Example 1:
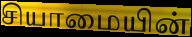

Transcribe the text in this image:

சியாமையின்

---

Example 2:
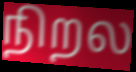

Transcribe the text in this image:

நிறல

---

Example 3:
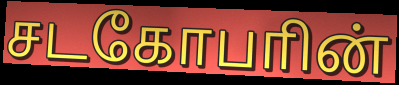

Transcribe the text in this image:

சடகோபரின்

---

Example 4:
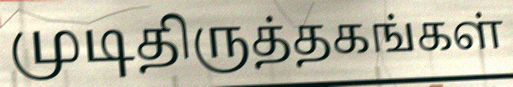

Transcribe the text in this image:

முடிதிருத்தகங்கள்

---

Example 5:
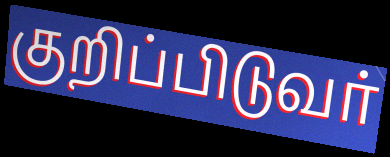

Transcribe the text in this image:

குறிப்பிடுவர்